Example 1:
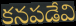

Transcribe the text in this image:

కనపడేవి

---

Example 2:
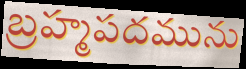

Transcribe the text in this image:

బ్రహ్మపదమును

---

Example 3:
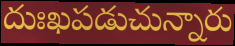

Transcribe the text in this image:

దుఃఖపడుచున్నారు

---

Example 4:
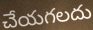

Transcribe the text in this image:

చేయగలదు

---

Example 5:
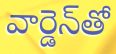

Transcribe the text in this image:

వార్డెన్‌తో